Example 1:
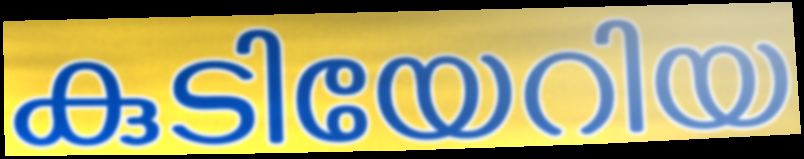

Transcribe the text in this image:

കുടിയേറിയ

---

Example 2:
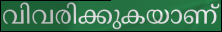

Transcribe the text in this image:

വിവരിക്കുകയാണ്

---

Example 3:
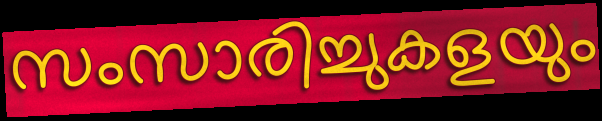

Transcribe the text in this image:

സംസാരിച്ചുകളയും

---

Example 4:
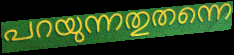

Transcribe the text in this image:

പറയുന്നതുതന്നെ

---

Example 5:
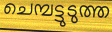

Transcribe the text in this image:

ചെമ്പട്ടുടുത്ത